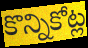
కొన్నికోట్ల